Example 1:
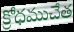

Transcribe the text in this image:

క్రోధముచేత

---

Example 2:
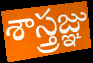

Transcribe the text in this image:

శాస్త్రజ్ఞు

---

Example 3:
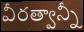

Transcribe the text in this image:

వీరత్వాన్నీ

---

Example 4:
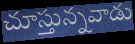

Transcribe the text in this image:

చూస్తున్నవాడు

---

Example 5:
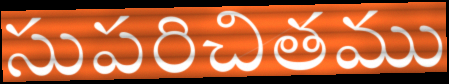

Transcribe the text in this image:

సుపరిచితము